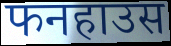
फनहाउस